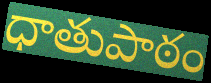
ధాతుపాఠం